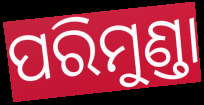
ପରିମୁଣ୍ଡା